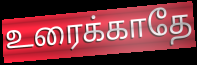
உரைக்காதே